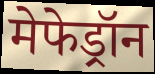
मेफेड्रॉन